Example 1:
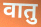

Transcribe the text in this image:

वातु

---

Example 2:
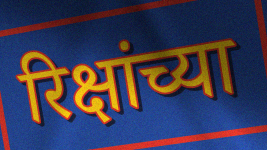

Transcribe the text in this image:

रिक्षांच्या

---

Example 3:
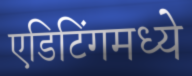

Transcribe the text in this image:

एडिटिंगमध्ये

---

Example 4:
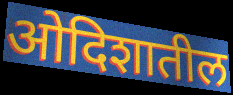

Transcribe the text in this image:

ओदिशातील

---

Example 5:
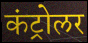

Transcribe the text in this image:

कंट्रोलर